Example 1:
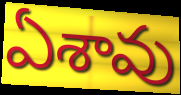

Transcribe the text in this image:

ఏశావు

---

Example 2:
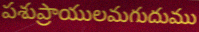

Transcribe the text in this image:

పశుప్రాయులమగుదుము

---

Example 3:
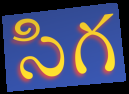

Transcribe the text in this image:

సిగ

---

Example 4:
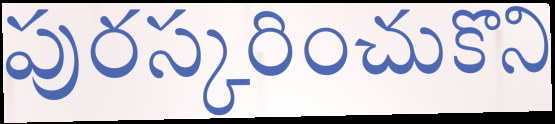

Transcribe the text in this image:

పురస్కరించుకొని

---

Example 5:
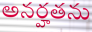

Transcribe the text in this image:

అనర్హతను